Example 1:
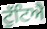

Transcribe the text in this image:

ਟੁੱਟਿਐ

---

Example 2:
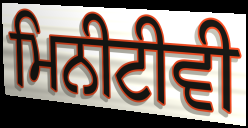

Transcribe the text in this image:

ਮਿਨੀਟੀਵੀ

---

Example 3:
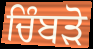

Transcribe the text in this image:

ਚਿੰਬੜੋ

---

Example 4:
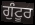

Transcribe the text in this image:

ਗੁੰਟੂਰ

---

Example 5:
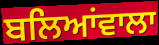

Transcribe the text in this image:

ਬਲਿਆਂਵਾਲਾ